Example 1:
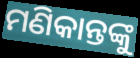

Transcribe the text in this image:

ମଣିକାନ୍ତଙ୍କୁ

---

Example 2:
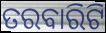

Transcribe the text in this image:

ତରବାରିଟି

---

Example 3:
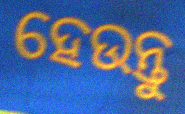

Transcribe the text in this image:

ହେଉନ୍ତୁ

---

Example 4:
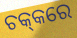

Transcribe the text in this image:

ଚକ୍‌କରେ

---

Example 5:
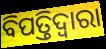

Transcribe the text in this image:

ବିପତ୍ତିଦ୍ୱାରା